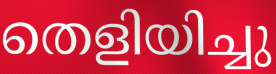
തെളിയിച്ചു